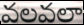
వలవలా